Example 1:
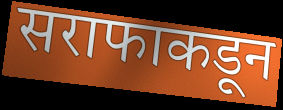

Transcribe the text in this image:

सराफाकडून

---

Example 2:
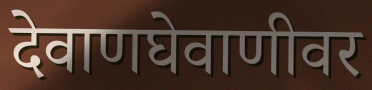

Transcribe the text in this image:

देवाणघेवाणीवर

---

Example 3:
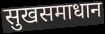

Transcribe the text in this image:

सुखसमाधान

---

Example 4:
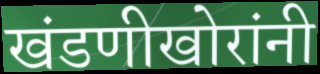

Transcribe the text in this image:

खंडणीखोरांनी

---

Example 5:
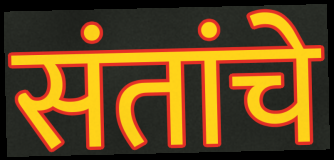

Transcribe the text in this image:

संतांचे